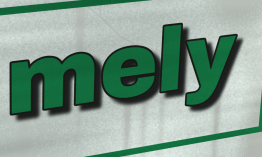
mely